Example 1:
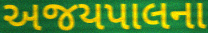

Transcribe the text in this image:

અજયપાલના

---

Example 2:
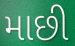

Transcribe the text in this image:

માછી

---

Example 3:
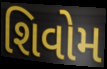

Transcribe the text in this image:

શિવોમ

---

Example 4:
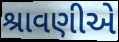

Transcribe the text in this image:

શ્રાવણીએ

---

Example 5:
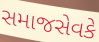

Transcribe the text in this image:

સમાજસેવકે